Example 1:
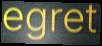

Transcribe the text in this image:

egret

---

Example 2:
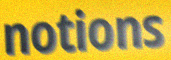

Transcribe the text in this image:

notions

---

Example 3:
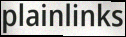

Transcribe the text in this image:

plainlinks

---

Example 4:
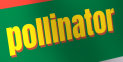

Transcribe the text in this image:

pollinator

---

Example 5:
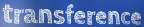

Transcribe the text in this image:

transference